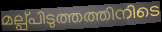
മല്പ്പിടുത്തത്തിനിടെ